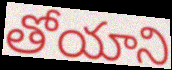
తోయాని